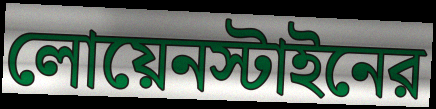
লোয়েনস্টাইনের